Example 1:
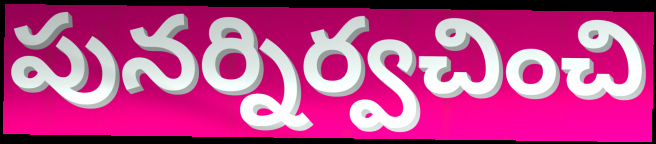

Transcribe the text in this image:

పునర్నిర్వచించి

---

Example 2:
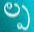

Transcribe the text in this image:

ల్ప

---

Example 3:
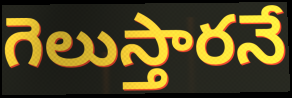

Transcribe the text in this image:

గెలుస్తారనే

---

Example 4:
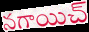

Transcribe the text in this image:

నగాయిచ్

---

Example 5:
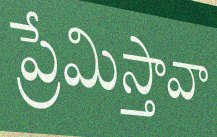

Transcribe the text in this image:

ప్రేమిస్తావా